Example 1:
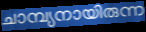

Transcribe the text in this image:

ചാമ്പ്യനായിരുന്ന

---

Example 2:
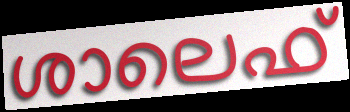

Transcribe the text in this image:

ശാലെഫ്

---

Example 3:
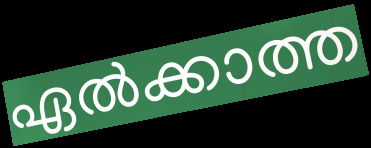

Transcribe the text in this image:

ഏൽക്കാത്ത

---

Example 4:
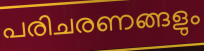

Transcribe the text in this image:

പരിചരണങ്ങളും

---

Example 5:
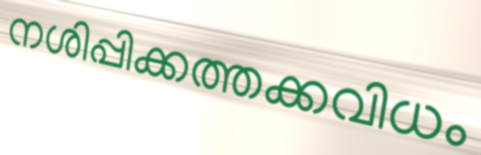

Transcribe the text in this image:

നശിപ്പിക്കത്തക്കവിധം